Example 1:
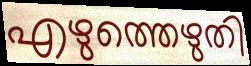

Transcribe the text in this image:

എഴുത്തെഴുതി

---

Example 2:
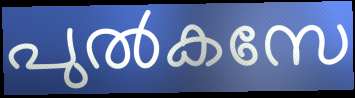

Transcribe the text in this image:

പുൽകസേ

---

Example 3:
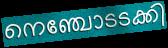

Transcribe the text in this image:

നെഞ്ചോടടക്കി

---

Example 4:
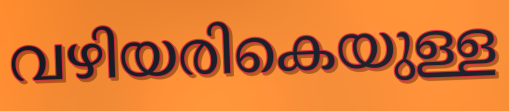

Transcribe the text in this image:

വഴിയരികെയുള്ള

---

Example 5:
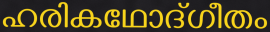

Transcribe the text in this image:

ഹരികഥോദ്ഗീതം